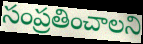
సంప్రతించాలని